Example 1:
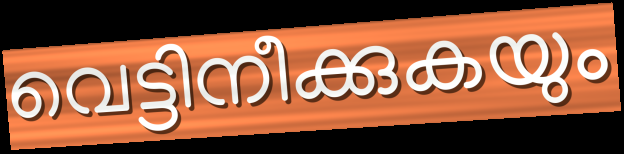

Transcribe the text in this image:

വെട്ടിനീക്കുകയും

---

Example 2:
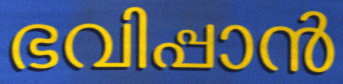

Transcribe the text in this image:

ഭവിപ്പാൻ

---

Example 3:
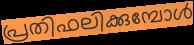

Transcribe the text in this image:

പ്രതിഫലിക്കുമ്പോൾ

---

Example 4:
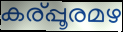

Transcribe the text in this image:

കര്പ്പൂരമഴ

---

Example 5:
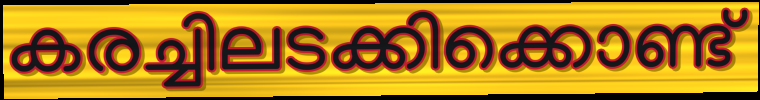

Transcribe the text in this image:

കരച്ചിലടക്കിക്കൊണ്ട്